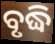
ବୃଦ୍ଧି